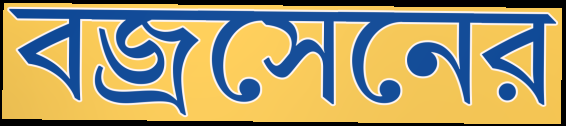
বজ্রসেনের